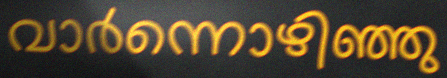
വാർന്നൊഴിഞ്ഞു